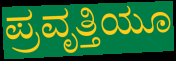
ಪ್ರವೃತ್ತಿಯೂ